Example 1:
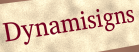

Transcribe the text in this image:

Dynamisigns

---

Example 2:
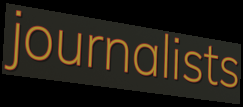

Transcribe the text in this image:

journalists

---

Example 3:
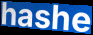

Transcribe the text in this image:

hashe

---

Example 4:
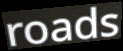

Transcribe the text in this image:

roads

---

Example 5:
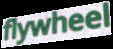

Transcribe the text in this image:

flywheel